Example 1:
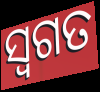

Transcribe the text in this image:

ସ୍ଵଗତ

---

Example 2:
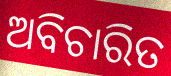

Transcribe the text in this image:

ଅବିଚାରିତ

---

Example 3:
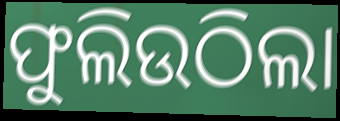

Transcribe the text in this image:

ଫୁଲିଉଠିଲା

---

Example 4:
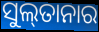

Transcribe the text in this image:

ସୁଲ୍‌ତାନାର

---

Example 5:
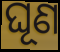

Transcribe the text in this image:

ଘୂଣ